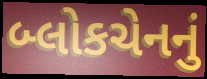
બ્લોકચેનનું